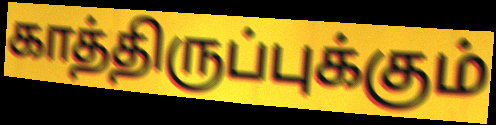
காத்திருப்புக்கும்